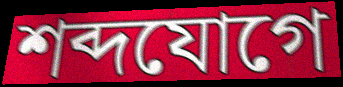
শব্দযোগে